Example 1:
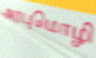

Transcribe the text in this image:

அரபுமொழி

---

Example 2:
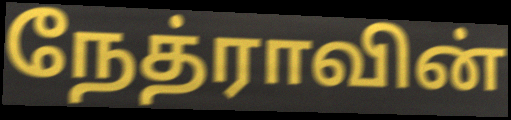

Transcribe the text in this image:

நேத்ராவின்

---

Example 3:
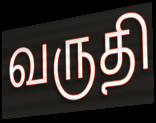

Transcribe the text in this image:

வருதி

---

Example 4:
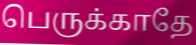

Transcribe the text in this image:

பெருக்காதே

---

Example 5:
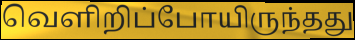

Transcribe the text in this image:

வெளிறிப்போயிருந்தது